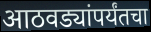
आठवड्यांपर्यंतचा